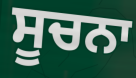
ਸੂਚਨਾ